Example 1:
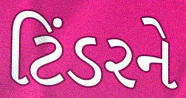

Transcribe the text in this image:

ટિંડરને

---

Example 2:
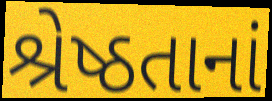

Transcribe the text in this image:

શ્રેષ્ઠતાનાં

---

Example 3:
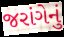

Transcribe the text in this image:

જરાંગેનું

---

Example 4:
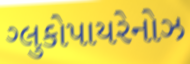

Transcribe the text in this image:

ગ્લુકોપાયરેનોઝ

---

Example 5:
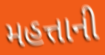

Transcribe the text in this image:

મહત્તાની